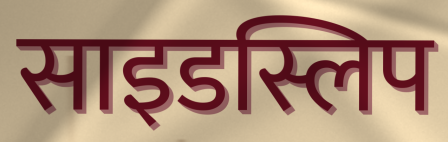
साइडस्लिप